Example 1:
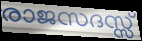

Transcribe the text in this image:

രാജസദസ്സ്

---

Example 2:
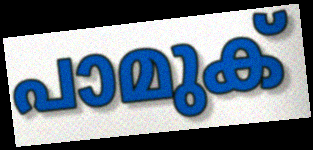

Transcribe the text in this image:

പാമുക്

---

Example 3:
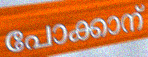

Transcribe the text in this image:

പോക്കാന്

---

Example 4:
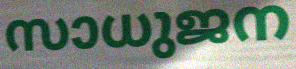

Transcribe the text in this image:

സാധുജന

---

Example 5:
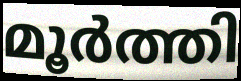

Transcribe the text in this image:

മൂർത്തി